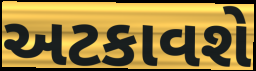
અટકાવશે